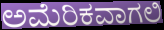
ಅಮೆರಿಕವಾಗಲಿ